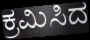
ಕ್ರಮಿಸಿದ